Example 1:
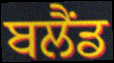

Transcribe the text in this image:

ਬਲੈਂਡ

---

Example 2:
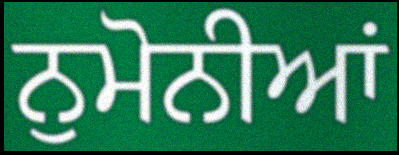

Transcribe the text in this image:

ਨੁਮੋਨੀਆਂ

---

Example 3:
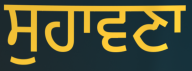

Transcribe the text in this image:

ਸੁਹਾਵਣਾ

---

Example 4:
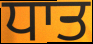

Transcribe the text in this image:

ਧਾਤ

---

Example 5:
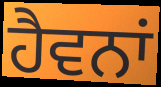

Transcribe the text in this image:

ਹੈਵਨਾਂ